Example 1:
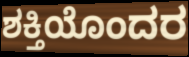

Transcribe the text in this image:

ಶಕ್ತಿಯೊಂದರ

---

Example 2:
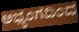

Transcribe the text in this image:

ಅಭ್ಯಂಗದಿಂದ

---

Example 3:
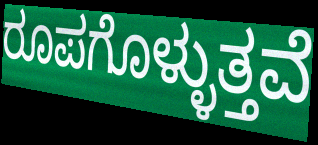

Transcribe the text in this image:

ರೂಪಗೊಳ್ಳುತ್ತವೆ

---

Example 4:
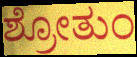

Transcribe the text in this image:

ಶ್ರೋತುಂ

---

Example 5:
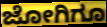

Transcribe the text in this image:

ಜೋಗಿಗೂ